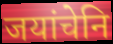
जयांचेनि